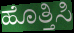
ಹೊತ್ತಿಸಿ